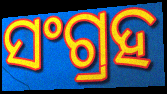
ସଂଗ୍ରହ